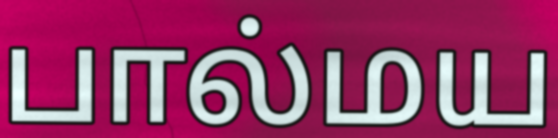
பால்மய